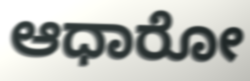
ಆಧಾರೋ